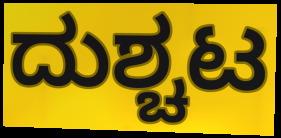
ದುಶ್ಚಟ